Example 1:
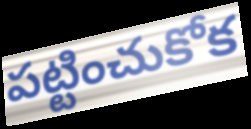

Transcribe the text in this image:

పట్టించుకోక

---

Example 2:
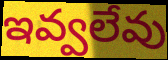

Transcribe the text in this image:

ఇవ్వలేవు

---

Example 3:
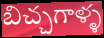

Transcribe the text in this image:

బిచ్చగాళ్ళ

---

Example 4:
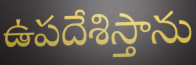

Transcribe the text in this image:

ఉపదేశిస్తాను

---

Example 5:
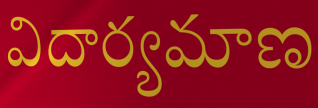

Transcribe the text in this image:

విదార్యమాణ